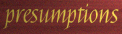
presumptions